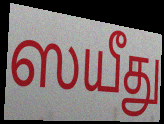
ஸயீது